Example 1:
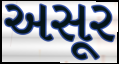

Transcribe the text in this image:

અસૂર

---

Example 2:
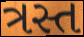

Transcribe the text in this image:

ત્રસ્ત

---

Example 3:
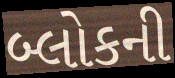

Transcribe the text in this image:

બ્લોકની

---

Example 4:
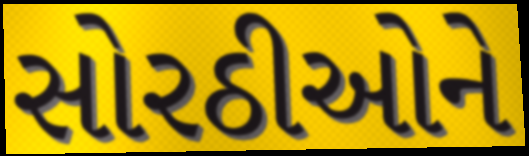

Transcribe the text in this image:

સોરઠીઓને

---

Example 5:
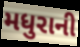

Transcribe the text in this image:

મધુરાની